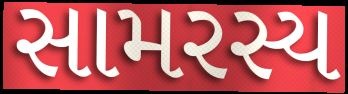
સામરસ્ય